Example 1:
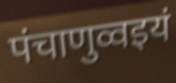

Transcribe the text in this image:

पंचाणुव्वइयं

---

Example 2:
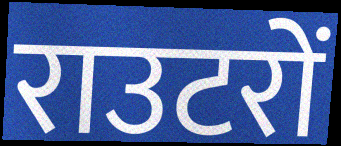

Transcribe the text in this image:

राउटरों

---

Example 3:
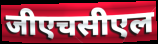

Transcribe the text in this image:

जीएचसीएल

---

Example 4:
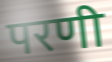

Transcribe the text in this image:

परणी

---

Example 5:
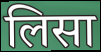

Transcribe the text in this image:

लिसा